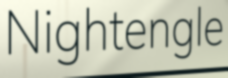
Nightengle